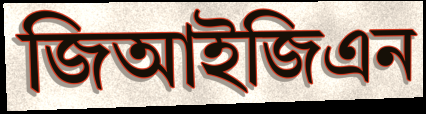
জিআইজিএন